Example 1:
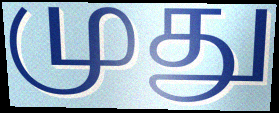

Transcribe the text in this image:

முது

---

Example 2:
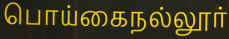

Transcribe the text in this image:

பொய்கைநல்லூர்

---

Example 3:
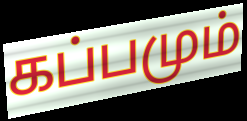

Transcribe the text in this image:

கப்பமும்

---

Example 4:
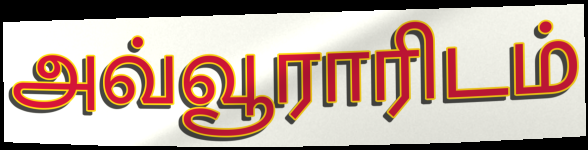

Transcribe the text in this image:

அவ்வூராரிடம்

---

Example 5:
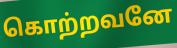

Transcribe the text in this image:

கொற்றவனே